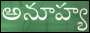
అనూహ్య